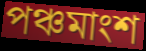
পঞ্চমাংশ